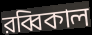
রব্বিকাল